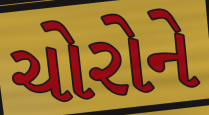
ચોરોને